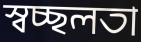
স্বচ্ছলতা